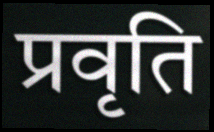
प्रवृति